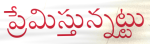
ప్రేమిస్తున్నట్టు